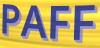
PAFF